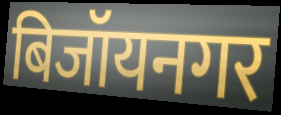
बिजॉयनगर